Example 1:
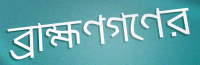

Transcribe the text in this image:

ব্রাহ্মণগণের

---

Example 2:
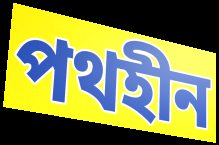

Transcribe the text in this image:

পথহীন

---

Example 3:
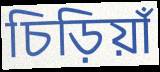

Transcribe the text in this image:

চিড়িয়াঁ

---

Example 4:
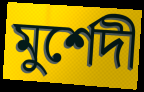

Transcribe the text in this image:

মুর্শেদী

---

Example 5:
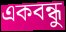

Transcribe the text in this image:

একবন্ধু